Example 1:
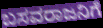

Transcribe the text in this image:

ಬಸವರಾಜನಿಗೆ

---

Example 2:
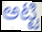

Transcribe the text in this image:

ಅಟ್ಟಿ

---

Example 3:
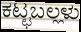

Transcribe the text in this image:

ಕಟ್ಟಬಲ್ಲಳು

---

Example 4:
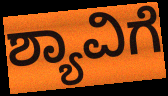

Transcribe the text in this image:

ಶ್ಯಾವಿಗೆ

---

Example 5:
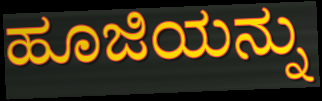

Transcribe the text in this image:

ಹೂಜಿಯನ್ನು